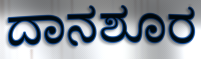
ದಾನಶೂರ